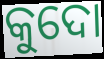
କୁଦୋ